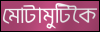
মোটামুটিকৈ